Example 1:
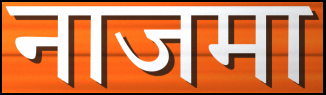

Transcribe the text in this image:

नाजमा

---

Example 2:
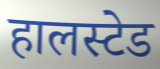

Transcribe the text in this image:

हालस्टेड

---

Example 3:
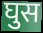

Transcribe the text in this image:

घुस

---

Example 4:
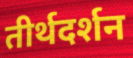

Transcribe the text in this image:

तीर्थदर्शन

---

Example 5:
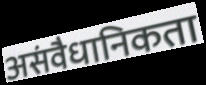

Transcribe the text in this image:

असंवैधानिकता